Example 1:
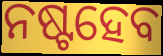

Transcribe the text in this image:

ନଷ୍ଟହେବ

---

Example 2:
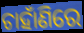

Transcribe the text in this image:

ଚାହାଁଣିରେ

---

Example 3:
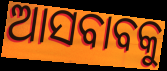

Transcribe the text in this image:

ଆସବାବକୁ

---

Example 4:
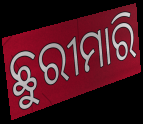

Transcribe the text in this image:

ଛୁରୀମାରି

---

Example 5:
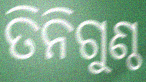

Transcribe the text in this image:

ତିନିଗୁଣ୍ଠ